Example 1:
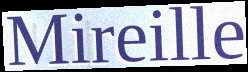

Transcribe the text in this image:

Mireille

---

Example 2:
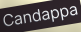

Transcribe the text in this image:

Candappa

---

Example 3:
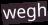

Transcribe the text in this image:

wegh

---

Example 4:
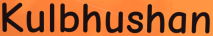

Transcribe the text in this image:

Kulbhushan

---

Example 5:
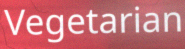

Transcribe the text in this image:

Vegetarian